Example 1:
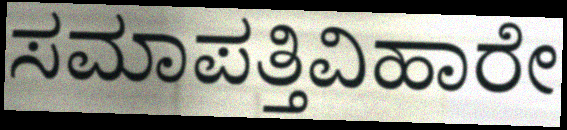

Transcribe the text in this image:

ಸಮಾಪತ್ತಿವಿಹಾರೇ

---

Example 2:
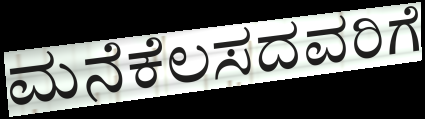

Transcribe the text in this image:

ಮನೆಕೆಲಸದವರಿಗೆ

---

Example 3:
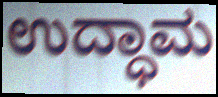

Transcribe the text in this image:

ಉದ್ಧಾಮ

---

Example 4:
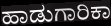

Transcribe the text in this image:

ಹಾಡುಗಾರಿಕಾ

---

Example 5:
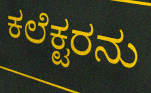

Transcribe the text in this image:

ಕಲೆಕ್ಟರನು